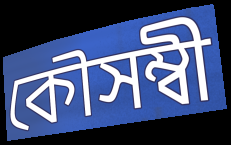
কৌসম্বী